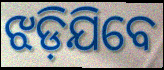
ଝଡ଼ିଯିବେ